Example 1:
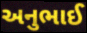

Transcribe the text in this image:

અનુભાઈ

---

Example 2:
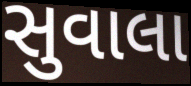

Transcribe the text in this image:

સુવાલા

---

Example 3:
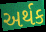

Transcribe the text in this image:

અર્થક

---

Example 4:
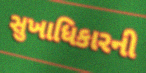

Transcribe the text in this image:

સુખાધિકારની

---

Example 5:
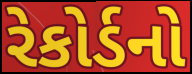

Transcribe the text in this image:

રેકોર્ડનો